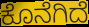
ಕೊನೆಗಿದೆ